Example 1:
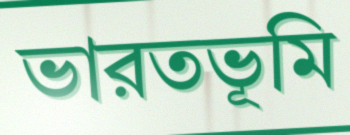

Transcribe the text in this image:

ভারতভূমি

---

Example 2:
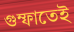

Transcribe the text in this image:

গুম্ফাতেই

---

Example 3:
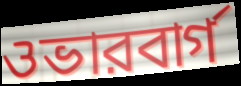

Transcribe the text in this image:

ওভারবার্গ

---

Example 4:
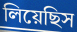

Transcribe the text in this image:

লিয়েছিস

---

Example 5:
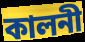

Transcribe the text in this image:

কালনী